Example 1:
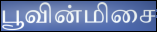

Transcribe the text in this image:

பூவின்மிசை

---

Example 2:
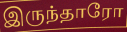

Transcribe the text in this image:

இருந்தாரோ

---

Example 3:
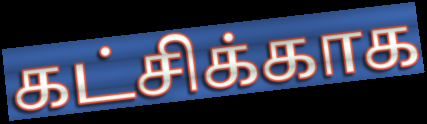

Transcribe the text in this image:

கட்சிக்காக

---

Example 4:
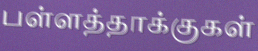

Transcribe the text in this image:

பள்ளத்தாக்குகள்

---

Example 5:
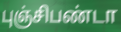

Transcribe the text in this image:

புஞ்சிபண்டா